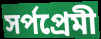
সর্পপ্রেমী